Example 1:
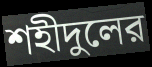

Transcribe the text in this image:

শহীদুলের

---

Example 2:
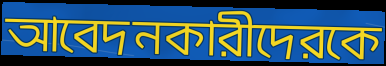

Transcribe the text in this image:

আবেদনকারীদেরকে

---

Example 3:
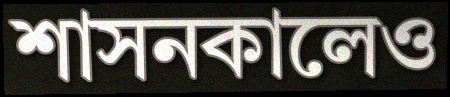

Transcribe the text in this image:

শাসনকালেও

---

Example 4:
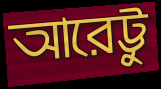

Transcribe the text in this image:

আরেট্টু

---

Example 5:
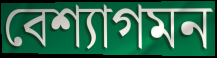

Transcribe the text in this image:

বেশ্যাগমন